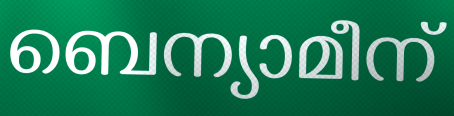
ബെന്യാമീന്